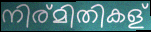
നിര്മിതികള്